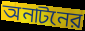
অনাটনের